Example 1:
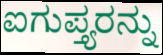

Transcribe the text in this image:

ಐಗುಪ್ತ್ಯರನ್ನು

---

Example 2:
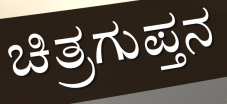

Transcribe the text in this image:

ಚಿತ್ರಗುಪ್ತನ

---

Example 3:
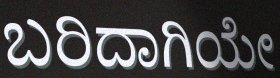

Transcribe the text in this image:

ಬರಿದಾಗಿಯೇ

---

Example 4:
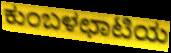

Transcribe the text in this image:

ಕುಂಬಳಛಾಟಿಯ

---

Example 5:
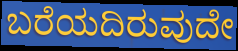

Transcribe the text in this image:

ಬರೆಯದಿರುವುದೇ